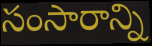
సంసారాన్ని